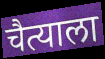
चैत्याला